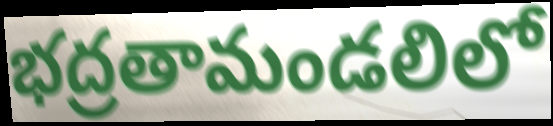
భద్రతామండలిలో